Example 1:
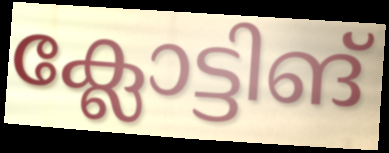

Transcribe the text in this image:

ക്ലോട്ടിങ്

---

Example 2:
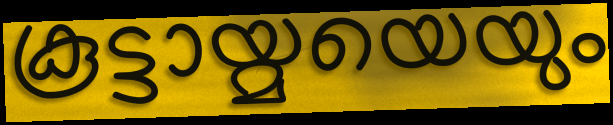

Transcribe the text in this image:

കൂട്ടായ്മയെയും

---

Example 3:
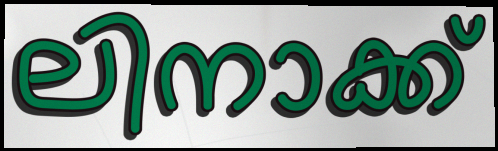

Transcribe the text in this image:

ലിനാക്ക്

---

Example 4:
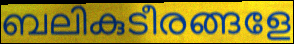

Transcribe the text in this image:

ബലികുടീരങ്ങളേ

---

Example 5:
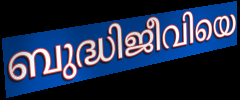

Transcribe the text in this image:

ബുദ്ധിജീവിയെ